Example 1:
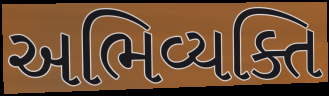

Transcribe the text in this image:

અભિવ્યક્તિ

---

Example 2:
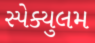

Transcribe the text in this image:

સ્પેક્યુલમ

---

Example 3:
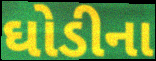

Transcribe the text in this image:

ઘોડીના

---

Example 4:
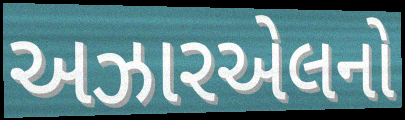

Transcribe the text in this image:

અઝારએલનો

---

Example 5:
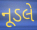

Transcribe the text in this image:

નૂડલે